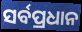
ସର୍ବପ୍ରଧାନ